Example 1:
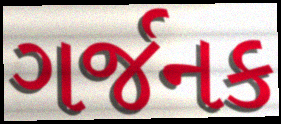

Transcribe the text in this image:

ગર્જનક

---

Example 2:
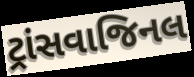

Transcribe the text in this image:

ટ્રાંસવાજિનલ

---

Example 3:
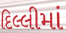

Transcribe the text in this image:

દિલ્લીમાં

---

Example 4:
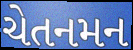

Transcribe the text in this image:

ચેતનમન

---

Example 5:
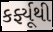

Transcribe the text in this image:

કર્ફ્યૂથી